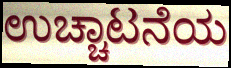
ಉಚ್ಚಾಟನೆಯ